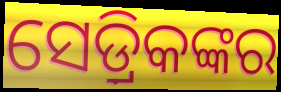
ସେଡ଼୍ରିକଙ୍କର